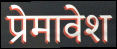
प्रेमावेश